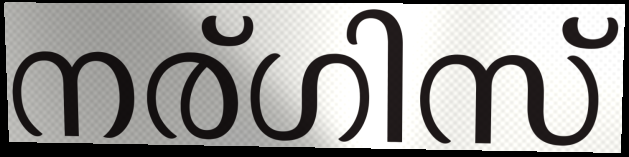
നര്ഗിസ്